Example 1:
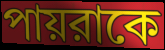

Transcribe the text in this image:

পায়রাকে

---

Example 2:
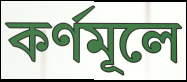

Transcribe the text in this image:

কর্ণমূলে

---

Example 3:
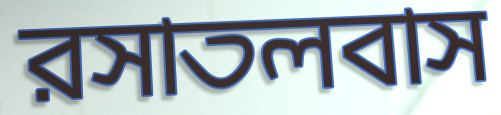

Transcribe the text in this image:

রসাতলবাস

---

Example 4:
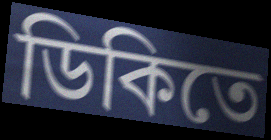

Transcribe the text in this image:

ডিকিতে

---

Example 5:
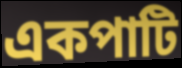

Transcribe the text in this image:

একপাটি